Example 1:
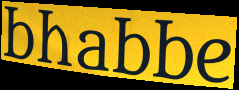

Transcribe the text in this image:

bhabbe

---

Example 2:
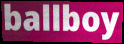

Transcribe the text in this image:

ballboy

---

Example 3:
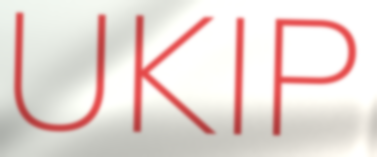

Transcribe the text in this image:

UKIP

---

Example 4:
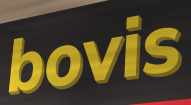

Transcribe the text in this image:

bovis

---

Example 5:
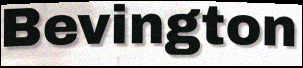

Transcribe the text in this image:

Bevington